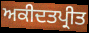
ਅਕੀਦਤਪ੍ਰੀਤ